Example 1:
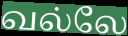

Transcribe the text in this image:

வல்லே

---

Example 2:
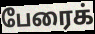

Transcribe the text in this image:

பேரைக்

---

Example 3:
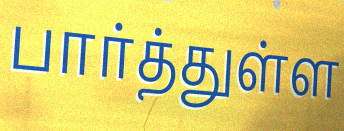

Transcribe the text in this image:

பார்த்துள்ள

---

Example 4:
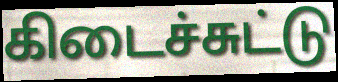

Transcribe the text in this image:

கிடைச்சுட்டு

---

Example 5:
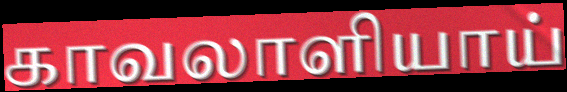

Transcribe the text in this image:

காவலாளியாய்